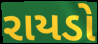
રાયડો